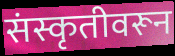
संस्कृतीवरून